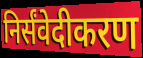
निर्संवेदीकरण